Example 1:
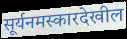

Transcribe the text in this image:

सूर्यनमस्कारदेखील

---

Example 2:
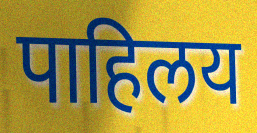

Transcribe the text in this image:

पाहिलय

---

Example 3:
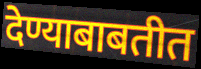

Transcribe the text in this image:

देण्याबाबतीत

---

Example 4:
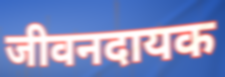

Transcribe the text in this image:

जीवनदायक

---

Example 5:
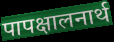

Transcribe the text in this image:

पापक्षालनार्थ